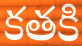
కతకి